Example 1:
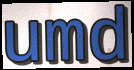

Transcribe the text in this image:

umd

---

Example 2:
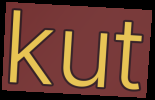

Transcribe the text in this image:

kut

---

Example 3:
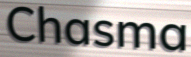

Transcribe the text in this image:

Chasma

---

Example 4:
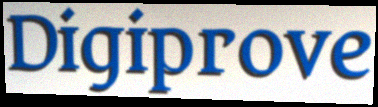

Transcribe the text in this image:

Digiprove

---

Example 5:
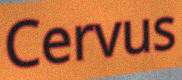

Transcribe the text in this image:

Cervus